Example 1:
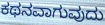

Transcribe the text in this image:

ಕಥನವಾಗುವುದು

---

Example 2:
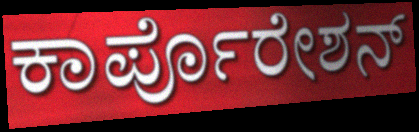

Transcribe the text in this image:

ಕಾರ್ಪೊರೇಶನ್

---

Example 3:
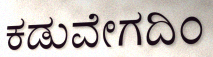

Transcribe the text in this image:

ಕಡುವೇಗದಿಂ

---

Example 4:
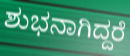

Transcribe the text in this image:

ಶುಭನಾಗಿದ್ದರೆ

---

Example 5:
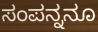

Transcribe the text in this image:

ಸಂಪನ್ನನೂ